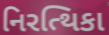
નિરત્થિકા